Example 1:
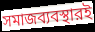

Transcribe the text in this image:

সমাজব্যবস্থারই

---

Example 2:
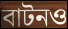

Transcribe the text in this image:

বাটনও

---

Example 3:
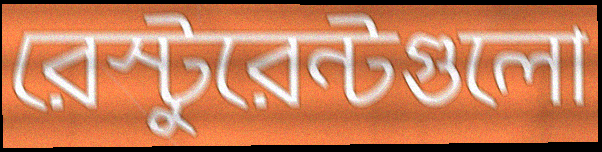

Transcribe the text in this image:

রেস্টুরেন্টগুলো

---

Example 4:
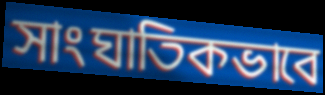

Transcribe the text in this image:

সাংঘাতিকভাবে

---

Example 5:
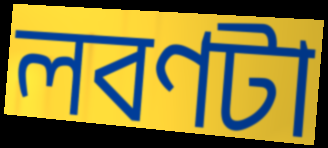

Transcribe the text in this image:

লবণটা